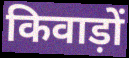
किवाड़ों